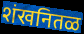
शंखनितळ